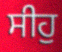
ਸੀਹੁ